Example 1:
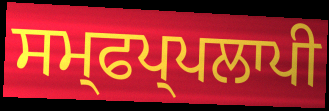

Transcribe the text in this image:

ਸਮ੍ਫਪ੍ਪਲਾਪੀ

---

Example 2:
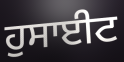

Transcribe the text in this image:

ਹੁਸਾਈਟ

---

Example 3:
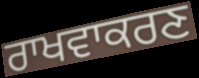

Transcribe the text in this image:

ਰਾਖਵਾਕਰਣ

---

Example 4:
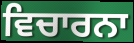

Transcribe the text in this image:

ਵਿਚਾਰਨਾ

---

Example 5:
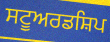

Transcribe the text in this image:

ਸਟੂਅਰਡਸ਼ਿਪ